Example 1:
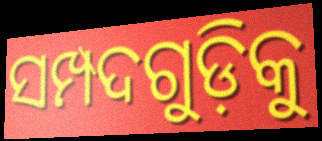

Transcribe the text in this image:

ସମ୍ପଦଗୁଡ଼ିକୁ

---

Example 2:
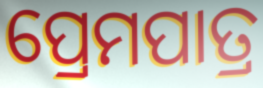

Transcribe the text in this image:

ପ୍ରେମପାତ୍ର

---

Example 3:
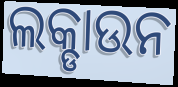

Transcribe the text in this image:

ଲକ୍ଡାଉନ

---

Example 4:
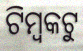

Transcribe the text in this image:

ଟିମ୍ବକଟୁ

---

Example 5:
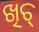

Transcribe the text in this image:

ଖିଚ୍